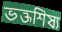
ভক্তশিষ্য